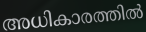
അധികാരത്തിൽ